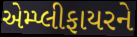
એમ્પ્લીફાયરને